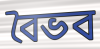
বৈভব